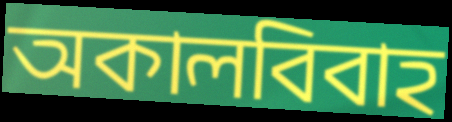
অকালবিবাহ